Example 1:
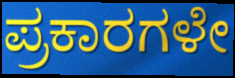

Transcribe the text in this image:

ಪ್ರಕಾರಗಳೇ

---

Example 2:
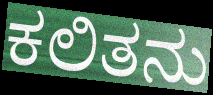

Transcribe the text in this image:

ಕಲಿತನು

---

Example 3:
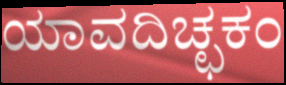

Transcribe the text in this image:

ಯಾವದಿಚ್ಛಕಂ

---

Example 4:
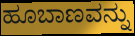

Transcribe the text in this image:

ಹೂಬಾಣವನ್ನು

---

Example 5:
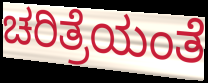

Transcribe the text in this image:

ಚರಿತ್ರೆಯಂತೆ